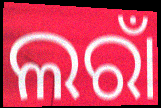
ଲରାଁ